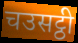
चउसट्ठी